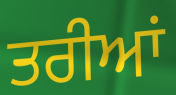
ਤਰੀਆਂ